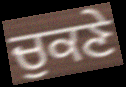
ਚੁਕਣੇ